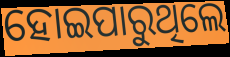
ହୋଇପାରୁଥିଲେ